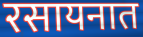
रसायनात